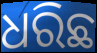
ଧରିଛ